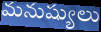
మనుష్యులు